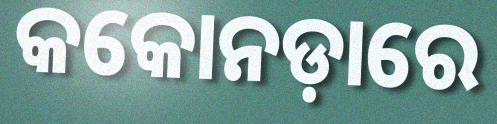
କକୋନଡ଼ାରେ